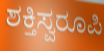
ಶಕ್ತಿಸ್ವರೂಪಿ